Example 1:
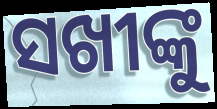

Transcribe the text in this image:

ସଖୀଙ୍କୁ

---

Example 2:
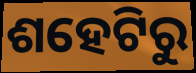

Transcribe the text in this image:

ଶହେଟିରୁ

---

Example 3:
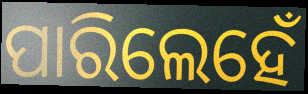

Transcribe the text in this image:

ପାରିଲେହେଁ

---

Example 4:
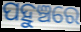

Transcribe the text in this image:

ପହୁଞ୍ଚରେ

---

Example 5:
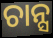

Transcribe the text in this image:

ଚାନ୍ସ